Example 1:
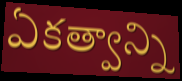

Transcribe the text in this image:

ఏకత్వాన్ని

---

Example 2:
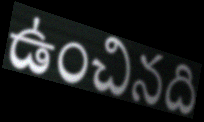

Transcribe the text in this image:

ఉంచినది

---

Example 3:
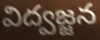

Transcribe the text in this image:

విద్వజ్జన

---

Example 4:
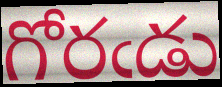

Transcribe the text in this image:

గోరఁడు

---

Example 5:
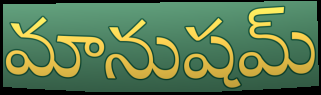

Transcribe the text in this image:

మానుషమ్